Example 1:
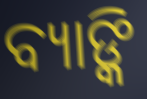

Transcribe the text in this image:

ବ୍ୟାଙ୍କି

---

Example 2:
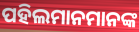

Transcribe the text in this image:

ପହିଲମାନମାନଙ୍କ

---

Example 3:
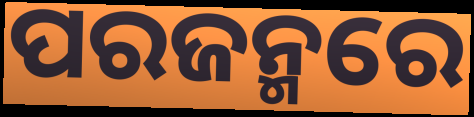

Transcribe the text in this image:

ପରଜନ୍ମରେ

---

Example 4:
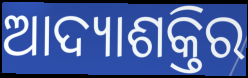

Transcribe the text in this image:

ଆଦ୍ୟାଶକ୍ତିର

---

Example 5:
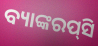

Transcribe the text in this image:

ବ୍ୟାଙ୍କରପ୍‌ସି